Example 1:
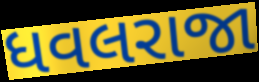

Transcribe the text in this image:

ધવલરાજા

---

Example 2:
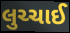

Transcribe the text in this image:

લુચ્ચાઈ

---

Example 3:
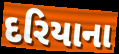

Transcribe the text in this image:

દરિયાના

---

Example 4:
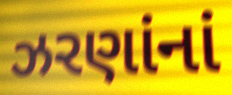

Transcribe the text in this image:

ઝરણાંનાં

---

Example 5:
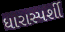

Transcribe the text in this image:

ધારાસ્પર્શી